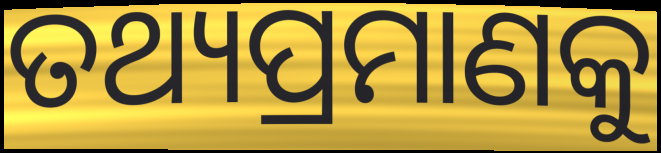
ତଥ୍ୟପ୍ରମାଣକୁ